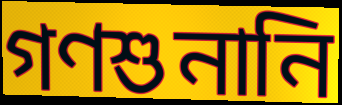
গণশুনানি